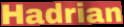
Hadrian